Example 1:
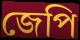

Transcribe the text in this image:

জেপি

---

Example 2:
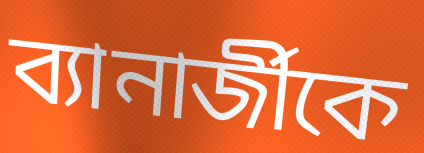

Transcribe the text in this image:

ব্যানার্জীকে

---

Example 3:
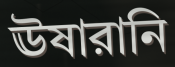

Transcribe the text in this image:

ঊষারানি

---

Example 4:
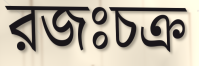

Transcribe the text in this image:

রজঃচক্র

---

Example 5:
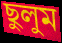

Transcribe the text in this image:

ছুলুম